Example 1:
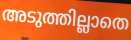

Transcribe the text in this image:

അടുത്തില്ലാതെ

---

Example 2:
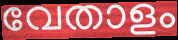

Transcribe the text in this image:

വേതാളം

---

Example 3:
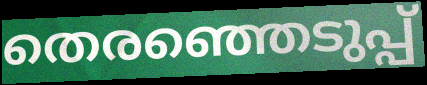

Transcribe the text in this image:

തെരഞ്ഞെടുപ്പ്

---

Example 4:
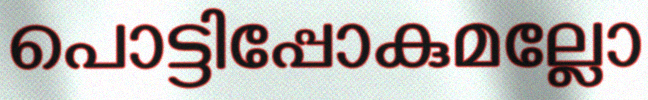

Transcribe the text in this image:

പൊട്ടിപ്പോകുമല്ലോ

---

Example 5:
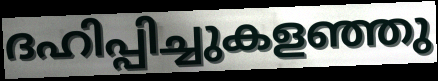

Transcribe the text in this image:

ദഹിപ്പിച്ചുകളഞ്ഞു